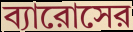
ব্যারোসের